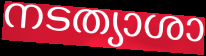
നടത്യാശാ